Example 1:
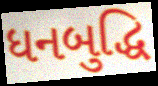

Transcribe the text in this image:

ધનબુદ્ધિ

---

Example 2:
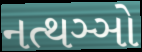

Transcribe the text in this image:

નત્થઞ્ઞો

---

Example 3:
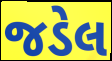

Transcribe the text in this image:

જડેલ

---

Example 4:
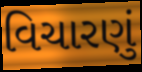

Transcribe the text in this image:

વિચારણું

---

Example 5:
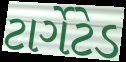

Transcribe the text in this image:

ટાર્ગેટેડ